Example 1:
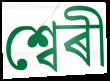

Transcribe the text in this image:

শ্বেৰী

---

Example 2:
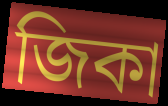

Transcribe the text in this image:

জিকা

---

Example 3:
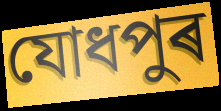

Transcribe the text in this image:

যোধপুৰ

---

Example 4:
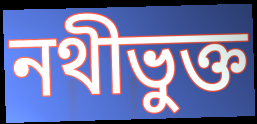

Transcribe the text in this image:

নথীভুক্ত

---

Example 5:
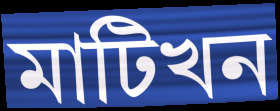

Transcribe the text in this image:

মাটিখন